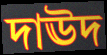
দাঊদ